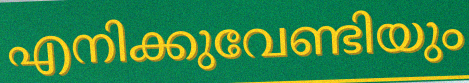
എനിക്കുവേണ്ടിയും